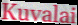
Kuvalai